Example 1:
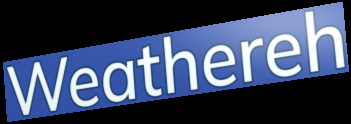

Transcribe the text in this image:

Weathereh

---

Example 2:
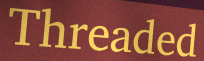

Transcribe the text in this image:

Threaded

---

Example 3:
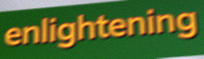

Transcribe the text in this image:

enlightening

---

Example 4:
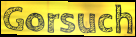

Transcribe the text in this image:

Gorsuch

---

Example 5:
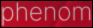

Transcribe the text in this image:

phenom